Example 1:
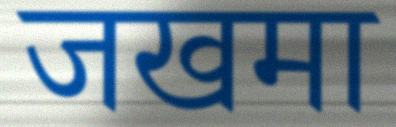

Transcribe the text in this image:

जखमा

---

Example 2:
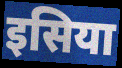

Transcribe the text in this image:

इसिया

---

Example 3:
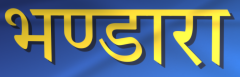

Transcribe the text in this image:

भण्डारा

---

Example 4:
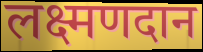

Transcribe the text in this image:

लक्ष्मणदान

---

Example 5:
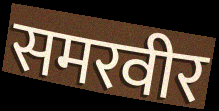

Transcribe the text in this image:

समरवीर